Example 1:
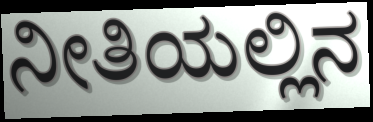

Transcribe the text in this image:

ನೀತಿಯಲ್ಲಿನ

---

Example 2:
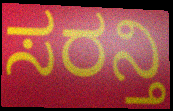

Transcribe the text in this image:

ಸರನ್ತಿ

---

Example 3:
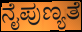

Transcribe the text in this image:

ನೈಪುಣ್ಯತೆ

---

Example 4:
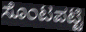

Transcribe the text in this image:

ಸೊಂಟಪಟ್ಟಿ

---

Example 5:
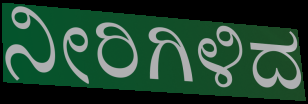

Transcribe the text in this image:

ನೀರಿಗಿಳಿದ